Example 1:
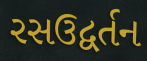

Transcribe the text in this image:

રસઉદ્વર્તન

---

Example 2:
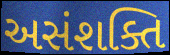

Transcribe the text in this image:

અસંશક્તિ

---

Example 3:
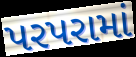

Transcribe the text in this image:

પરપરામાં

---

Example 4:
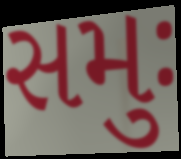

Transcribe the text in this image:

સમુઃ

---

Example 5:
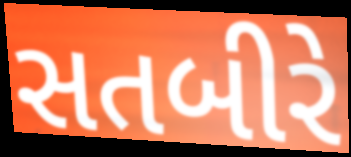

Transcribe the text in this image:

સતબીરે